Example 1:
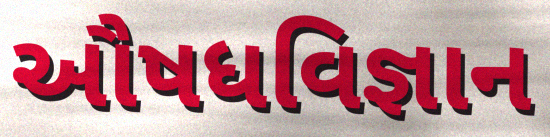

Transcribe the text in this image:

ઔષધવિજ્ઞાન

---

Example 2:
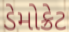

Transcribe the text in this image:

ડેમોક્રેટ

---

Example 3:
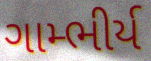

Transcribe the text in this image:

ગામ્ભીર્ય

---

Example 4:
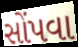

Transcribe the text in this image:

સોંપવા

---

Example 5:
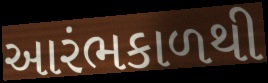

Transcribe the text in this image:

આરંભકાળથી